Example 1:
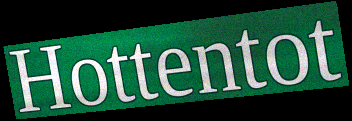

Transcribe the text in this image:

Hottentot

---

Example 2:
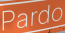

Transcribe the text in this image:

Pardo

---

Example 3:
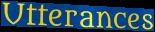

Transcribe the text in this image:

Utterances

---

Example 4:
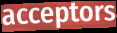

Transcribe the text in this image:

acceptors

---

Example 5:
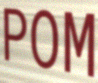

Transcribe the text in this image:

POM